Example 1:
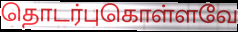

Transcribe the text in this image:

தொடர்புகொள்ளவே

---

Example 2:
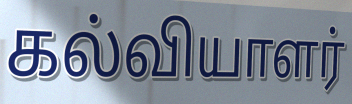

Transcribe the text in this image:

கல்வியாளர்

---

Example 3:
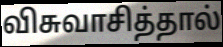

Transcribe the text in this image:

விசுவாசித்தால்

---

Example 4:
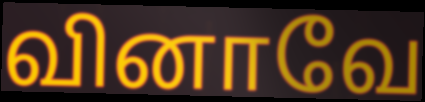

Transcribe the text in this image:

வினாவே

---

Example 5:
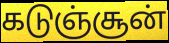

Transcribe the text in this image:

கடுஞ்சூன்